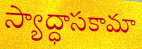
స్యాద్ధాసకామా